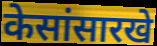
केसांसारखे